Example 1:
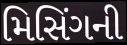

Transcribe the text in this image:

મિસિંગની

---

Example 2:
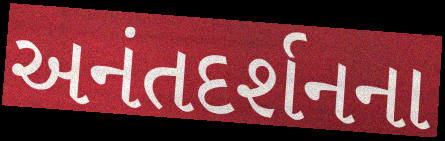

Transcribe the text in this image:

અનંતદર્શનના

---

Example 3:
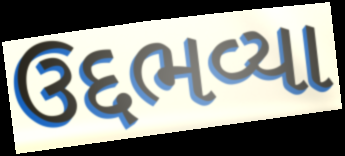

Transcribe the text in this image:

ઉદ્દભવ્યા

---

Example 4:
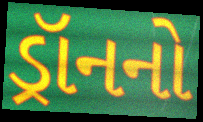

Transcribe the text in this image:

ડ્રૉનનો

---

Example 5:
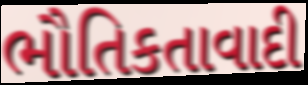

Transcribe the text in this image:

ભૌતિકતાવાદી